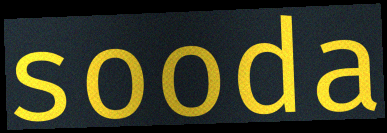
sooda